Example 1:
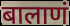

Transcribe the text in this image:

बालाणं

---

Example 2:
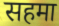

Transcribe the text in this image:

सहमा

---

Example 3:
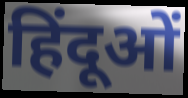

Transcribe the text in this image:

हिंदूओं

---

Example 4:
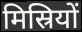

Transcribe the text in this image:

मिस्रियों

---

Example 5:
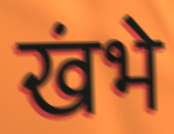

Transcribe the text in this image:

खंभे